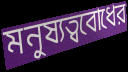
মনুষ্যত্ববোধের